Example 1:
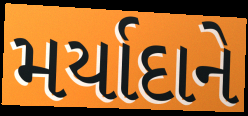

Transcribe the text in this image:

મર્યાદાને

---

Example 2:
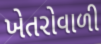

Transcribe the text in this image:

ખેતરોવાળી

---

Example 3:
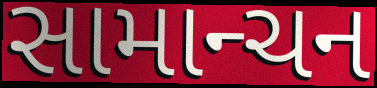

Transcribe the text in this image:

સામાન્ચન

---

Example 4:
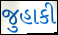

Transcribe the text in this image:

જુહાકી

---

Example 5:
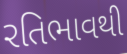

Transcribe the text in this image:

રતિભાવથી